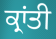
ਕ੍ਰਾਂਤੀ